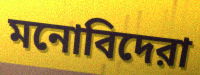
মনোবিদেরা